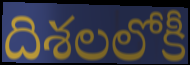
దిశలలోకీ